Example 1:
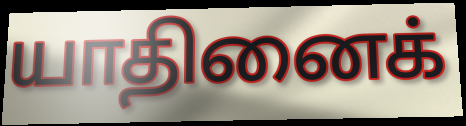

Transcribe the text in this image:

யாதினைக்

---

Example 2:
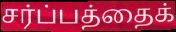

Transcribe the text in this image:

சர்ப்பத்தைக்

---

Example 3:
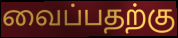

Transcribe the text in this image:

வைப்பதற்கு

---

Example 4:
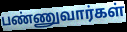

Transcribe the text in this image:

பண்ணுவார்கள்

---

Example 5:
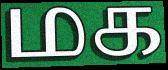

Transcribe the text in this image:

மக